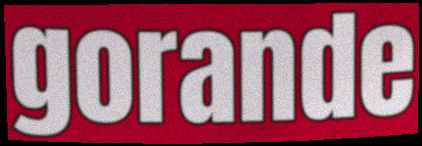
gorande